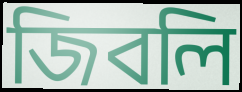
জিবলি